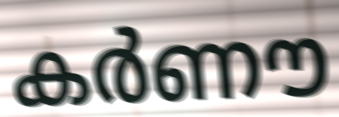
കർണൗ